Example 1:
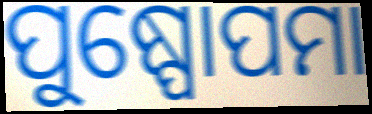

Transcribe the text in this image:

ପୁଷ୍ପୋପମା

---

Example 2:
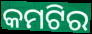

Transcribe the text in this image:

କମଟିର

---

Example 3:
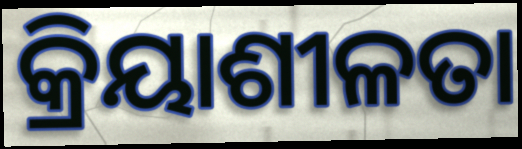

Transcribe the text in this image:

କ୍ରିୟାଶୀଳତା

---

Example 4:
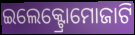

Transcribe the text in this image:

ଇଲେକ୍ଟ୍ରୋମୋଜାଟି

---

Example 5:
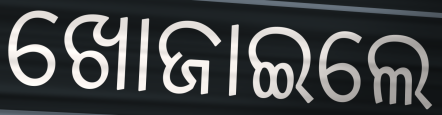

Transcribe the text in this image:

ଖୋଜାଇଲେ